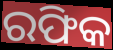
ରଫିକ